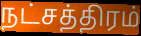
நட்சத்திரம்